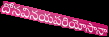
దోసవినయపరియోసానా